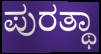
ಪುರತ್ಥಾ